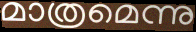
മാത്രമെന്നു